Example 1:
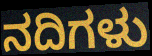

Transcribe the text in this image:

ನದಿಗಳು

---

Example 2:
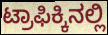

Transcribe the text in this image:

ಟ್ರಾಫಿಕ್ಕಿನಲ್ಲಿ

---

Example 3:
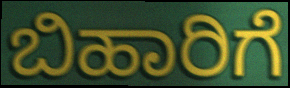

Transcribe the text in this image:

ಬಿಹಾರಿಗೆ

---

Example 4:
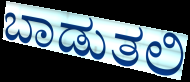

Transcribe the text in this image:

ಬಾಡುತಲಿ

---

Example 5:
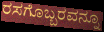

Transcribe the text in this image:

ರಸಗೊಬ್ಬರವನ್ನೂ